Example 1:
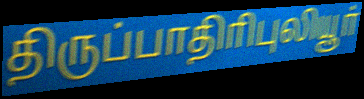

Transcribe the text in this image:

திருப்பாதிரிபுலியூர்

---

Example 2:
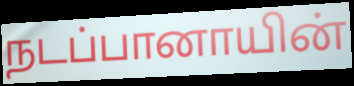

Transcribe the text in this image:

நடப்பானாயின்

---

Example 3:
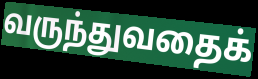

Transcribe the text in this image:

வருந்துவதைக்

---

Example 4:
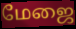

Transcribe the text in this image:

மேஜை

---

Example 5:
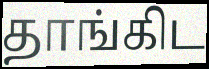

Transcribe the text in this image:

தாங்கிட